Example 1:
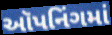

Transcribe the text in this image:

ઑપનિંગમાં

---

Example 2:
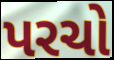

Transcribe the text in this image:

પરચો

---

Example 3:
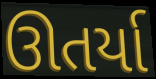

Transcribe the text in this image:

ઊતર્યા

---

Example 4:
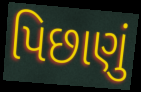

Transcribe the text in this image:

પિછાણું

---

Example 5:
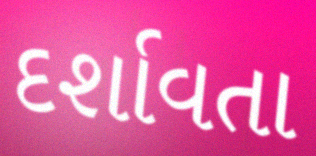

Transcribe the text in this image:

દર્શાવતા